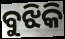
ବୁଝିକି